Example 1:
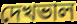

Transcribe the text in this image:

দেখভাল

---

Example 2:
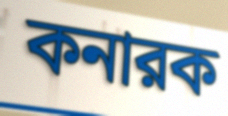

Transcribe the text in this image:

কনারক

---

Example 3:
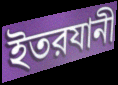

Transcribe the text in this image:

ইতরযানী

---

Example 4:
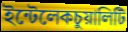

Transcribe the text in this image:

ইন্টেলেকচুয়ালিটি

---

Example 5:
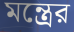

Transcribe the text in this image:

মন্ত্রের